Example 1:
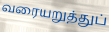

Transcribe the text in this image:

வரையறுத்துப்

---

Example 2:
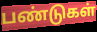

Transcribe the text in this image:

பண்டுகள்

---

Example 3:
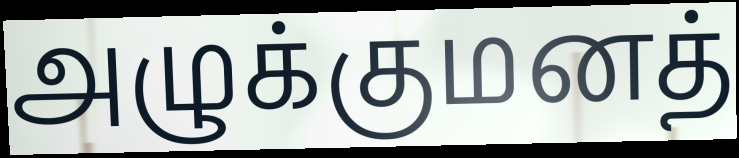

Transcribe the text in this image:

அழுக்குமனத்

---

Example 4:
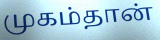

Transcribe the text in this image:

முகம்தான்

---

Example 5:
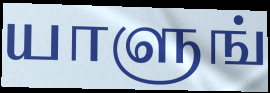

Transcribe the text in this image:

யாளுங்